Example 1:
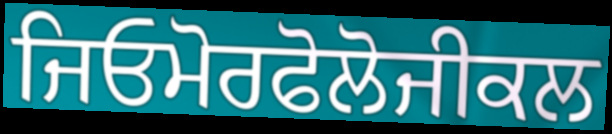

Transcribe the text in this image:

ਜਿਓਮੋਰਫੋਲੋਜੀਕਲ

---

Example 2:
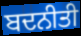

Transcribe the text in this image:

ਬਦਨੀਤੀ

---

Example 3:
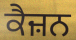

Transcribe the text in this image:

ਕੈਜ਼ਨ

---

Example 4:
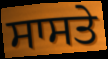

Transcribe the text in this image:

ਸਾਸਤੇ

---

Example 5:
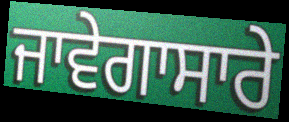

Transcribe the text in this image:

ਜਾਵੇਗਾਸਾਰੇ